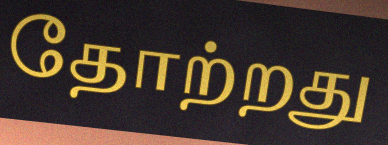
தோற்றது